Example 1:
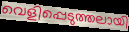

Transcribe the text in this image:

വെളിപ്പെടുത്തലായി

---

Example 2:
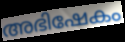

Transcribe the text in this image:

അഭിഷേകം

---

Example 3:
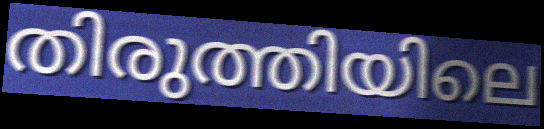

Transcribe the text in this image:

തിരുത്തിയിലെ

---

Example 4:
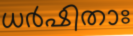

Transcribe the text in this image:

ധർഷിതാഃ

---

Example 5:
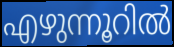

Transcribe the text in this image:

എഴുന്നൂറിൽ